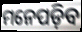
ମନେପଡ଼ିବ